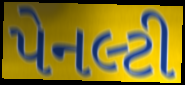
પેનલ્ટી